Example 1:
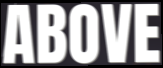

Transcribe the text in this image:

ABOVE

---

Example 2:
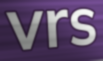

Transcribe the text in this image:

vrs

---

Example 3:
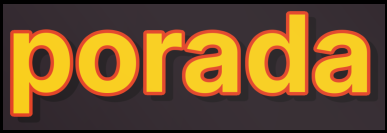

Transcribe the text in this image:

porada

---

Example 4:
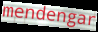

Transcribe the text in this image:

mendengar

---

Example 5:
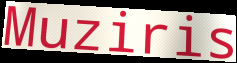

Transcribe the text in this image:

Muziris